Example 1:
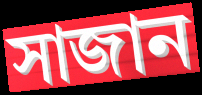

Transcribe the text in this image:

সাজান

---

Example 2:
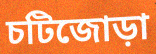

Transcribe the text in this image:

চটিজোড়া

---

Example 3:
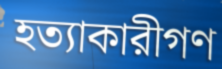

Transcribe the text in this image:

হত্যাকারীগণ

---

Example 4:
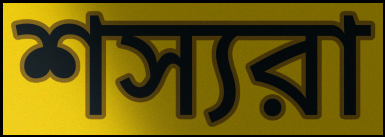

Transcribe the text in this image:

শস্যরা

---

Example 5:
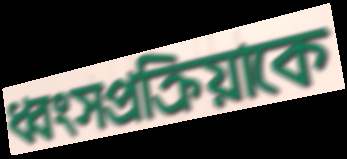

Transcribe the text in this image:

ধ্বংসপ্রক্রিয়াকে